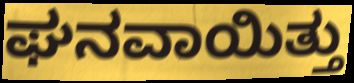
ಘನವಾಯಿತ್ತು